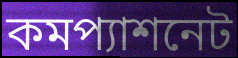
কমপ্যাশনেট